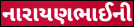
નારાયણભાઈની